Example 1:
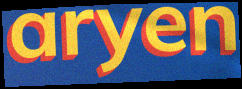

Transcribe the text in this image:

aryen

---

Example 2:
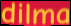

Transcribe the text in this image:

dilma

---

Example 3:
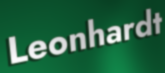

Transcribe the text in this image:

Leonhardt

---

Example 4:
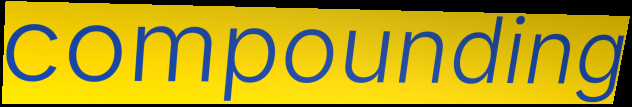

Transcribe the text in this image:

compounding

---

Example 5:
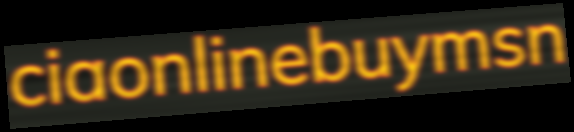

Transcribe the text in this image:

ciaonlinebuymsn